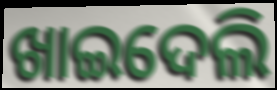
ଖାଇଦେଲି